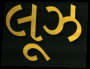
લૂઝ